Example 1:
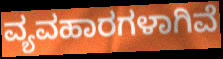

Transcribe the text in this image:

ವ್ಯವಹಾರಗಳಾಗಿವೆ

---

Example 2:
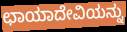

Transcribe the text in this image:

ಛಾಯಾದೇವಿಯನ್ನು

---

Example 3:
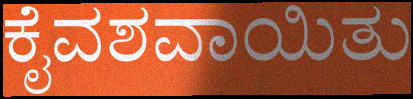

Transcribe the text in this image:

ಕೈವಶವಾಯಿತು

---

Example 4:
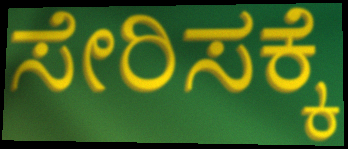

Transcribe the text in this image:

ಸೇರಿಸಕ್ಕೆ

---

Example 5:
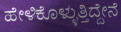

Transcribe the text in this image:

ಹೇಳಿಕೊಳ್ಳುತ್ತಿದ್ದೇನೆ